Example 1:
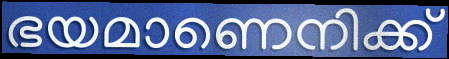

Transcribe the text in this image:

ഭയമാണെനിക്ക്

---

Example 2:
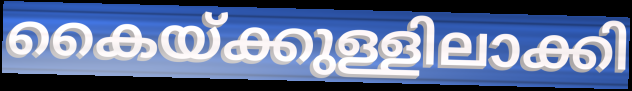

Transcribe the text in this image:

കൈയ്ക്കുള്ളിലാക്കി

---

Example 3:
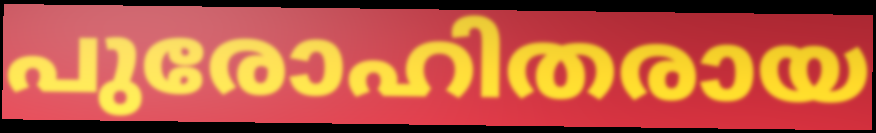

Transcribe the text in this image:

പുരോഹിതരായ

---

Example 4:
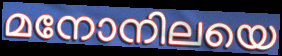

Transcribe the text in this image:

മനോനിലയെ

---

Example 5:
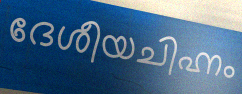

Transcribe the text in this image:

ദേശീയചിഹ്നം